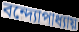
বন্দ্যোপাধ্যায়